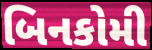
બિનકોમી